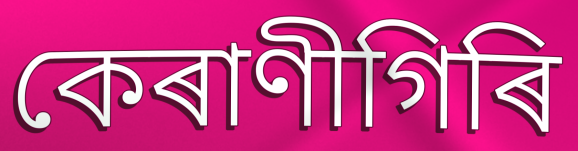
কেৰাণীগিৰি